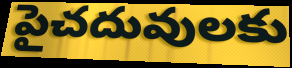
పైచదువులకు